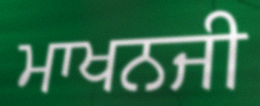
ਮਾਖਨਜੀ